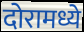
दोरामध्ये